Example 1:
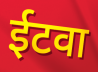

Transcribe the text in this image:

ईटवा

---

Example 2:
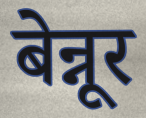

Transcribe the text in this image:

बेन्नूर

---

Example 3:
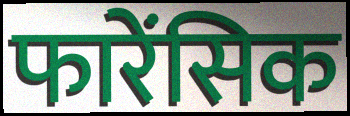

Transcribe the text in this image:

फारेंसिक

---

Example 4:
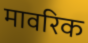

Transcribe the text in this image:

मावरिक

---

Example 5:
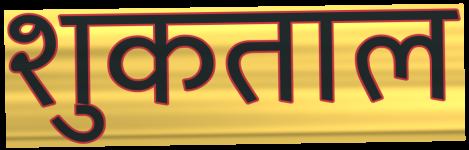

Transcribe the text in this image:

शुकताल